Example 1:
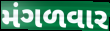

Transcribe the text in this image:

મંગળવાર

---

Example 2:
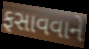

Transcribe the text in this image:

ફસાવવાને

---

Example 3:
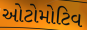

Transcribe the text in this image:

ઓટોમોટિવ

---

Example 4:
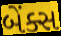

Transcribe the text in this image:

બેંક્સ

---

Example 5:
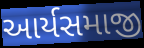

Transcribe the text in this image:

આર્યસમાજી